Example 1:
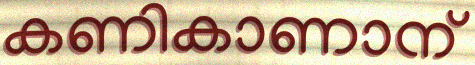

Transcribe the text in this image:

കണികാണാന്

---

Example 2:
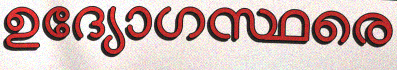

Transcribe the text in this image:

ഉദ്യോഗസ്ഥരെ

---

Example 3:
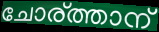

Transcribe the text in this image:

ചോര്ത്താന്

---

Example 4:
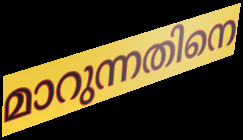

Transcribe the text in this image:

മാറുന്നതിനെ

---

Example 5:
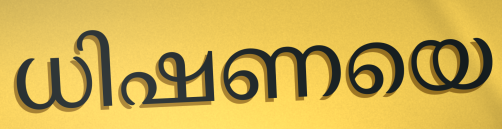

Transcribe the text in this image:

ധിഷണയെ